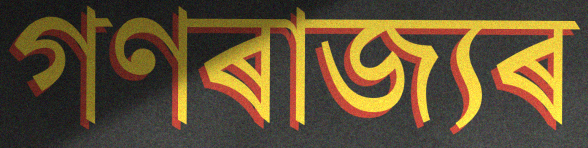
গণৰাজ্যৰ